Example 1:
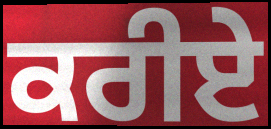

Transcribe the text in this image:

ਕਰੀਏੇ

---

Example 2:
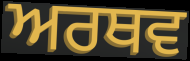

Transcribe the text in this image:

ਅਰਥਵ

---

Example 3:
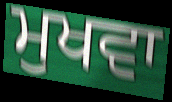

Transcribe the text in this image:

ਮੁਖਵਾ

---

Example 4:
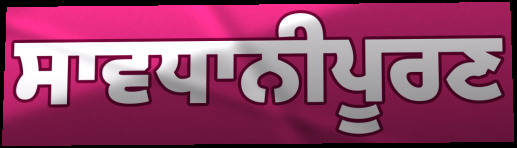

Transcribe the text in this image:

ਸਾਵਧਾਨੀਪੂਰਣ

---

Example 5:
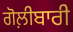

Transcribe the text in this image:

ਗੋਲ਼ੀਬਾਰੀ